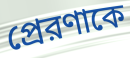
প্রেরণাকে